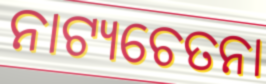
ନାଟ୍ୟଚେତନା